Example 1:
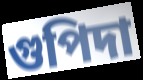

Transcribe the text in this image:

গুপিদা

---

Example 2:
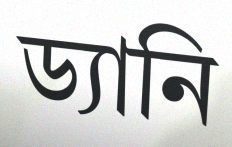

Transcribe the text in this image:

ড্যানি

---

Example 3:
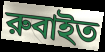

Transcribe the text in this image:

রুবাইত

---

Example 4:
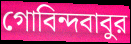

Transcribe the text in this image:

গোবিন্দবাবুর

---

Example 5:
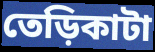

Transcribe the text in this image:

তেড়িকাটা